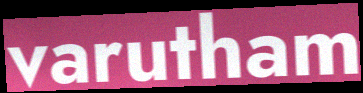
varutham